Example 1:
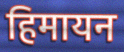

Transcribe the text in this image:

हिमायन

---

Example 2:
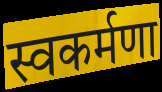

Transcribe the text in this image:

स्वकर्मणा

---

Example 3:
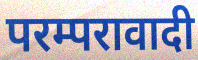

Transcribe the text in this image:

परम्परावादी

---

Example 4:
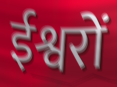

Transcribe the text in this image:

ईश्वरों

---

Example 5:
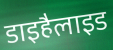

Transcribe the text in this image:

डाइहैलाइड